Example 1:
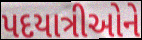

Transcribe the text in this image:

પદયાત્રીઓને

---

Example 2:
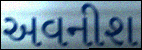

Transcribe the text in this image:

અવનીશ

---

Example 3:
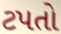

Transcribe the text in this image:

ટપતો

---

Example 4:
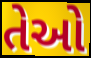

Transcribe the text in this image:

તેઓે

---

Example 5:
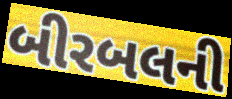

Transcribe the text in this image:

બીરબલની